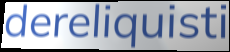
dereliquisti